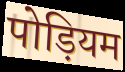
पोड़ियम